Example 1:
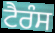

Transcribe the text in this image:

ਟੈਰੰਸ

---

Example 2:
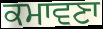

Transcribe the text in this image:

ਕਮਾਵਣਾ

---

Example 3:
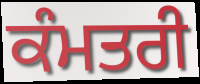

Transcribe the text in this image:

ਕੰਮਤਰੀ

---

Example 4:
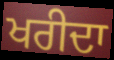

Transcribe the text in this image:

ਖਰੀਦਾ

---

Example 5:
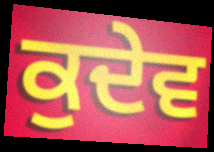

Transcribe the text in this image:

ਕੁਦੇਵ